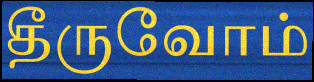
தீருவோம்